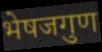
भेषजगुण